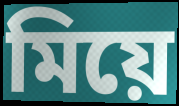
মিয়ে